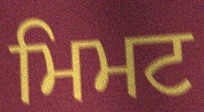
ਮਿਮਟ